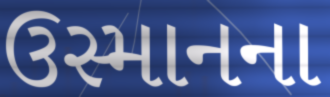
ઉસ્માનના